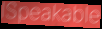
ISpeakable